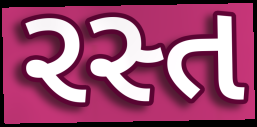
રસ્ત